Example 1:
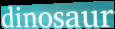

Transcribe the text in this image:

dinosaur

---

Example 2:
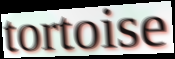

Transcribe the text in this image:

tortoise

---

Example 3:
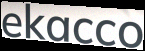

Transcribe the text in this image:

ekacco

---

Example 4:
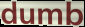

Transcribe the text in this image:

dumb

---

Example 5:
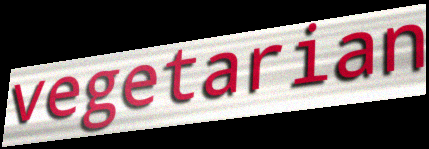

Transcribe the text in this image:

vegetarian